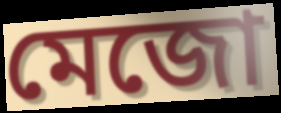
মেজো